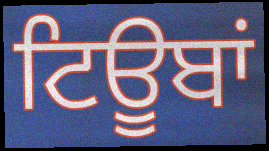
ਟਿਊਬਾਂ